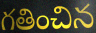
గతించిన